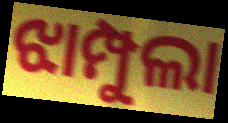
ଝାମ୍ପୁଲା